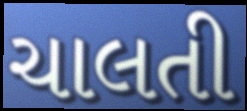
ચાલતી